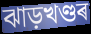
ঝাড়খণ্ডৰ